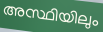
അസ്ഥിയിലും